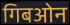
गिबओन